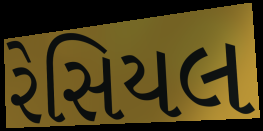
રેસિયલ